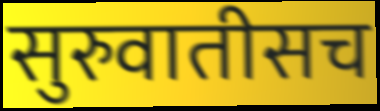
सुरुवातीसच